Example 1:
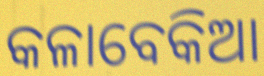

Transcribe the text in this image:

କଳାବେକିଆ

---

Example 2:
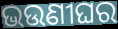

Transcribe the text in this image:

ଭଉଣୀଘର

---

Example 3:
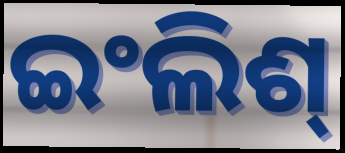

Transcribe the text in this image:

ଇଂଲିଶ୍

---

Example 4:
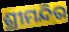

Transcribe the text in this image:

ଶ୍ରୀମନ୍ଦିର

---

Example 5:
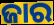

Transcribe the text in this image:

ଜାର